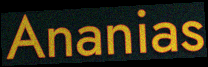
Ananias